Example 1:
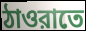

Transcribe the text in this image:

ঠাওরাতে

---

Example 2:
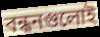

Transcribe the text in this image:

বন্ধনগুলোই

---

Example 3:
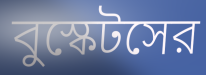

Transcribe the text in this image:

বুস্কেটসের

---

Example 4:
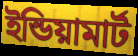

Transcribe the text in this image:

ইন্ডিয়ামার্ট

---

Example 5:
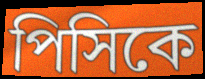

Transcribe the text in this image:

পিসিকে